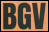
BGV